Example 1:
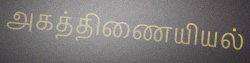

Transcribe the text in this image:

அகத்திணையியல்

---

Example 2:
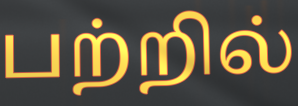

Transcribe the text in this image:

பற்றில்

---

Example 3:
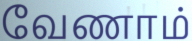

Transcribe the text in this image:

வேணாம்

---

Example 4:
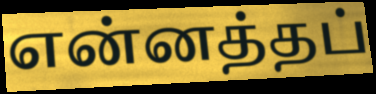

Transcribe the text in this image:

என்னத்தப்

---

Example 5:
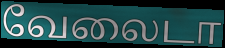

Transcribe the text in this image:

வேலைடா